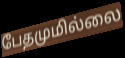
பேதமுமில்லை